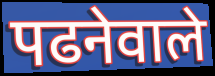
पढनेवाले